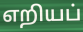
எறியப்